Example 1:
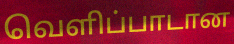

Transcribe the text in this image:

வெளிப்பாடான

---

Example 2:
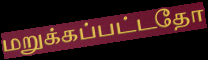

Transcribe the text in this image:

மறுக்கப்பட்டதோ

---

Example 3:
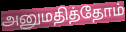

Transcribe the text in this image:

அனுமதித்தோம்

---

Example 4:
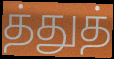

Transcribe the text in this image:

த்துத்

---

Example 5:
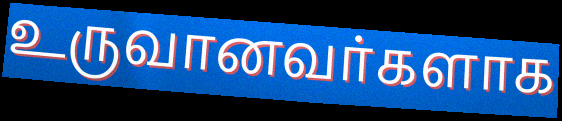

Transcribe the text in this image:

உருவானவர்களாக